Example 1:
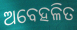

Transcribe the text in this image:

ଅବେହଳିତ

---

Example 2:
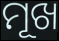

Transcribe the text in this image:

ମୂଖ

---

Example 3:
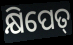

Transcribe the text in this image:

କ୍ଷିପେତ୍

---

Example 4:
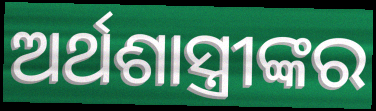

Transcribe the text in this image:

ଅର୍ଥଶାସ୍ତ୍ରୀଙ୍କର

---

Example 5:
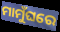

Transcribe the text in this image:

ମାମୁଁଘରେ